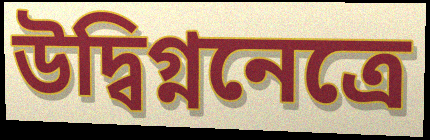
উদ্বিগ্ননেত্রে